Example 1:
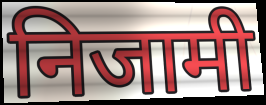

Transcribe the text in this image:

निजामी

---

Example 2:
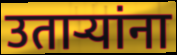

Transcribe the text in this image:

उताऱ्यांना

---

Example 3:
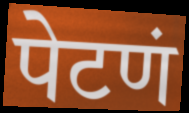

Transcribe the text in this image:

पेटणं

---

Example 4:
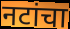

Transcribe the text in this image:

नटांचा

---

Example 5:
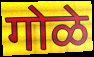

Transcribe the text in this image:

गोळे